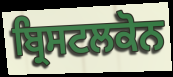
ਬ੍ਰਿਸਟਲਕੋਨ